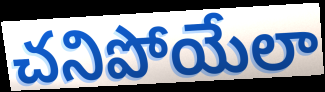
చనిపోయేలా